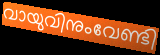
വായുവിനുംവേണ്ടി